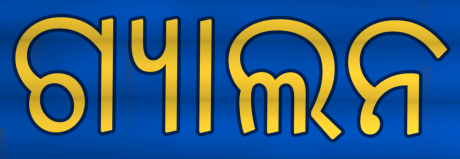
ଗ୍ୟାଲନ